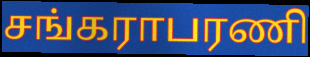
சங்கராபரணி